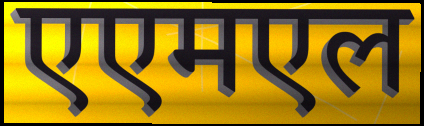
एएमएल